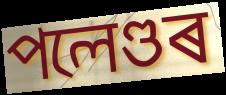
পলেণ্ডৰ